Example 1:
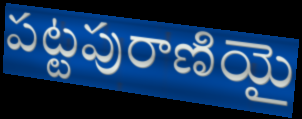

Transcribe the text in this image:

పట్టపురాణియై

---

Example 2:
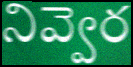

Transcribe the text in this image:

నివ్వెర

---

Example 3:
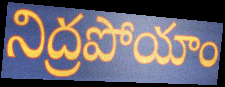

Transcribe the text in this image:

నిద్రపోయాం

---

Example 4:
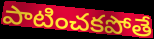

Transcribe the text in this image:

పాటించకపోతే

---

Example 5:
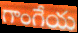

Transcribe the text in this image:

గాంగేయ